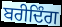
ਬਰੀਦਿੰਗ